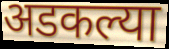
अडकल्या